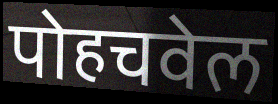
पोहचवेल